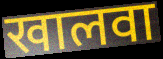
खालवा